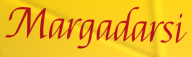
Margadarsi